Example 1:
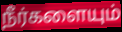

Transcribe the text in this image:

நீர்களையும்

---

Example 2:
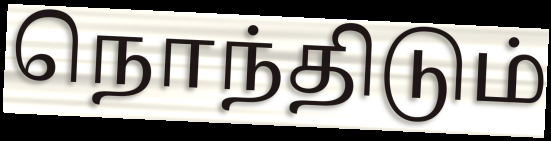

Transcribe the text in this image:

நொந்திடும்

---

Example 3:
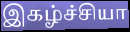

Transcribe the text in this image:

இகழ்ச்சியா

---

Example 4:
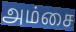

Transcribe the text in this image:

அம்சை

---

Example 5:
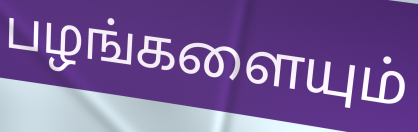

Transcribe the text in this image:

பழங்களையும்